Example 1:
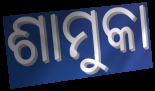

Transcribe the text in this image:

ଶାମୁକା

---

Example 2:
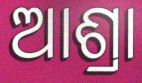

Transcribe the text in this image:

ଆଶ୍ରା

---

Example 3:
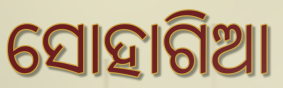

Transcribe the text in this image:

ସୋହାଗିଆ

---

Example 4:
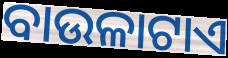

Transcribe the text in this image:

ବାଉଳାଟାଏ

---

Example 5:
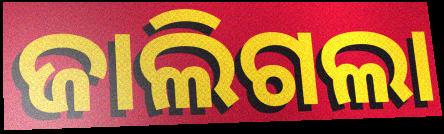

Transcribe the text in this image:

ଜାଲିଗଲା